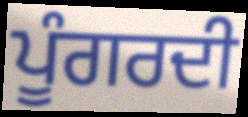
ਪੂੰਗਰਦੀ